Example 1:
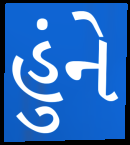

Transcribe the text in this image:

હુંને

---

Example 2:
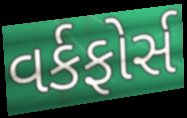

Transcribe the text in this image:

વર્કફોર્સ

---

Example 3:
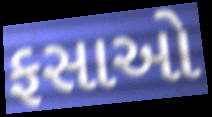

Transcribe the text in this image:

ફસાઓ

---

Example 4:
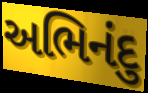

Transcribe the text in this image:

અભિનંદુ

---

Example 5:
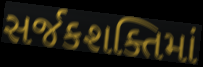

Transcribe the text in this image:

સર્જકશક્તિમાં